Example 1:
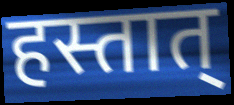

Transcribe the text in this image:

हस्तात्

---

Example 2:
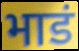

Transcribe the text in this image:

भाडं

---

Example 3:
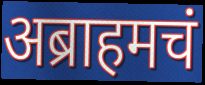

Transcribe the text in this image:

अब्राहमचं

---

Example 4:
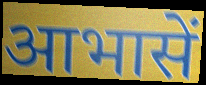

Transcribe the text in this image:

आभासें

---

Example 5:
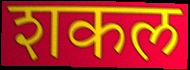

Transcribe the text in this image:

शकल